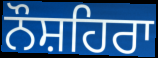
ਨੌਸ਼ਹਿਰਾ